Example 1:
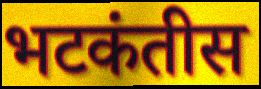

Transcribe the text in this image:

भटकंतीस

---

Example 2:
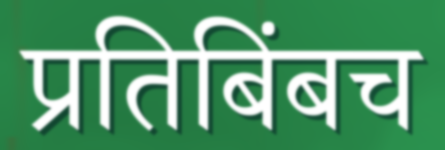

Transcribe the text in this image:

प्रतिबिंबच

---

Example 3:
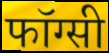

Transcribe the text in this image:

फॉग्सी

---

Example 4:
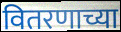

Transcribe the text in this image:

वितरणाच्या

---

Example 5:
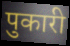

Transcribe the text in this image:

पुकारी